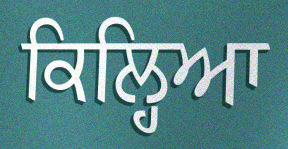
ਕਿਲ੍ਹਿਆ